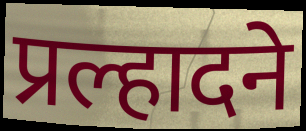
प्रल्हादने